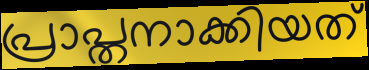
പ്രാപ്തനാക്കിയത്